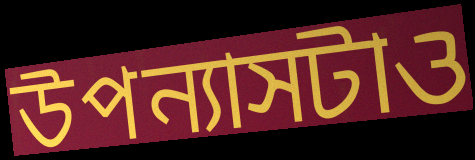
উপন্যাসটাও